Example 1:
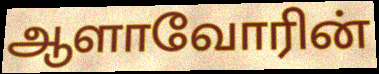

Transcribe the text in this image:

ஆளாவோரின்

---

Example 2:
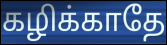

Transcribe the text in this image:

கழிக்காதே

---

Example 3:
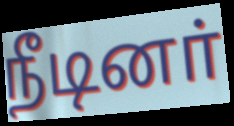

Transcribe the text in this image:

நீடினர்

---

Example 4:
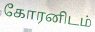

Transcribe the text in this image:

கோரனிடம்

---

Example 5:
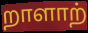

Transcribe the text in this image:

றாளாற்